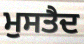
ਮੁਸਤੈਦ